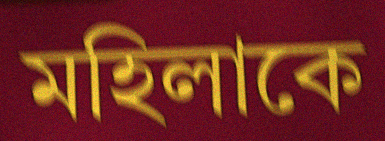
মহিলাকে